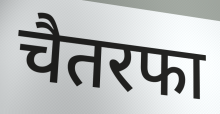
चैतरफा